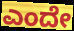
ಎಂದೇ